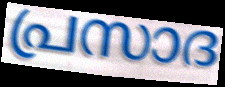
പ്രസാദ